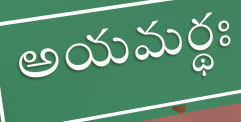
అయమర్థః